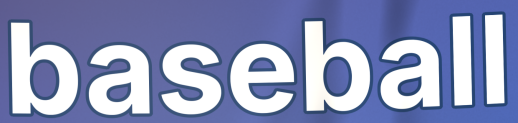
baseball